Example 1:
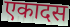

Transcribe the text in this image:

एकादस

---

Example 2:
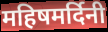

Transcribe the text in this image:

महिषमर्दिनी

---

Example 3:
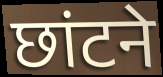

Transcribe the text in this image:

छांटने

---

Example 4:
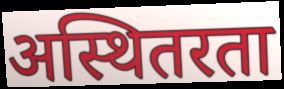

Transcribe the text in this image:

अस्थितरता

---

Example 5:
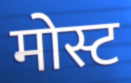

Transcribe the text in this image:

मोस्ट